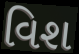
વિશ